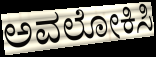
ಅವಲೋಕಿಸಿ